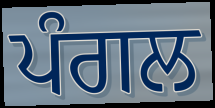
ਪੰਗਲ